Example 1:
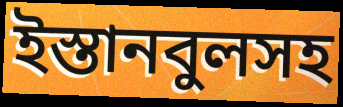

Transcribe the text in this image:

ইস্তানবুলসহ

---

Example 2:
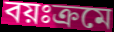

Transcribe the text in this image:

বয়ঃক্রমে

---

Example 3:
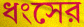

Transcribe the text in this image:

ধংসের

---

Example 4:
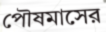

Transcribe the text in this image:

পৌষমাসের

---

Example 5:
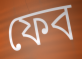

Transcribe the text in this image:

ফেব